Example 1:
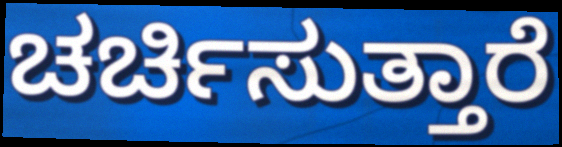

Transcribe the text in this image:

ಚರ್ಚಿಸುತ್ತಾರೆ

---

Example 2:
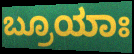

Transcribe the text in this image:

ಬ್ರೂಯಾಃ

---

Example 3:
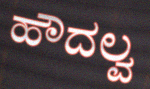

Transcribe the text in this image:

ಹೌದಲ್ವ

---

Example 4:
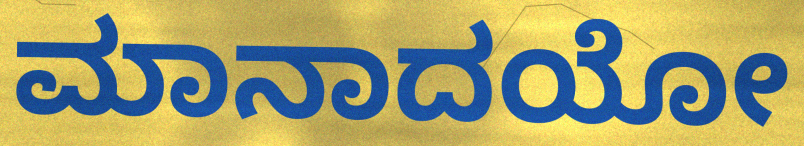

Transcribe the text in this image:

ಮಾನಾದಯೋ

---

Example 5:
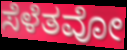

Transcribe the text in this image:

ಸೆಳೆತವೋ